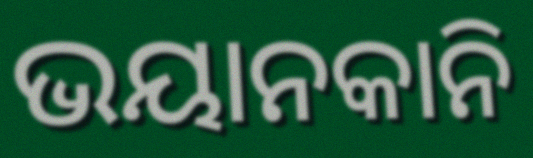
ଭୟାନକାନି